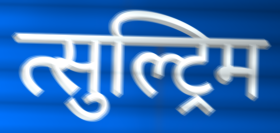
त्सुल्ट्रिम